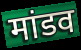
मांडव